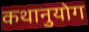
कथानुयोग